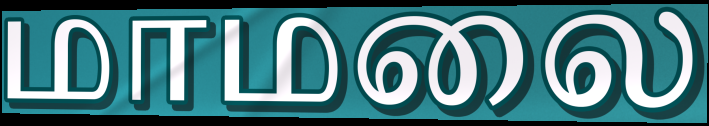
மாமலை